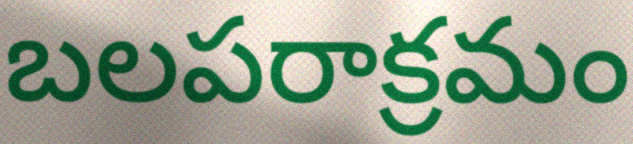
బలపరాక్రమం